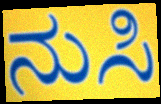
ನುಸಿ